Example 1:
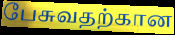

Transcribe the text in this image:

பேசுவதற்கான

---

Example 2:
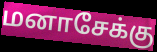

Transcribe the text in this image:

மனாசேக்கு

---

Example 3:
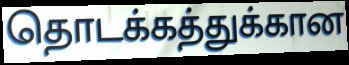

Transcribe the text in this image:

தொடக்கத்துக்கான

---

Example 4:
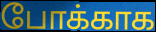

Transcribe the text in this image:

போக்காக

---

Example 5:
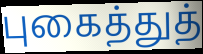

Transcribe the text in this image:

புகைத்துத்